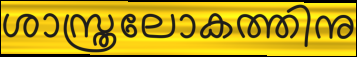
ശാസ്ത്രലോകത്തിനു